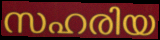
സഹരിയ